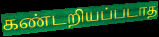
கண்டறியப்படாத